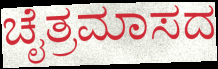
ಚೈತ್ರಮಾಸದ